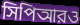
সিপিআরও